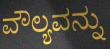
ವೌಲ್ಯವನ್ನು